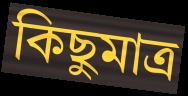
কিছুমাত্র